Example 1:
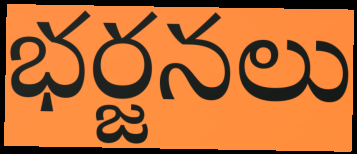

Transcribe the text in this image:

భర్జనలు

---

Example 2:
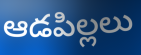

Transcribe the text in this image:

ఆడపిల్లలు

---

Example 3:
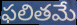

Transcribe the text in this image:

ఫలితమే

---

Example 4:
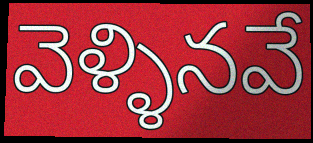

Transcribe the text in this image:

వెళ్ళినవే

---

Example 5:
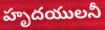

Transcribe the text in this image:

హృదయులనీ